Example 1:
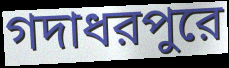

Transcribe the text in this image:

গদাধরপুরে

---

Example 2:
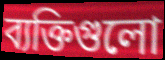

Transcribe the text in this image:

ব্যক্তিগুলো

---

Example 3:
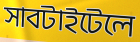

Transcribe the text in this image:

সাবটাইটেলে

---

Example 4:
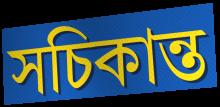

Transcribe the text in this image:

সচিকান্ত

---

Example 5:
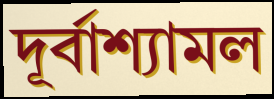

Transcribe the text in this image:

দূর্বাশ্যামল